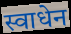
स्वाधेन